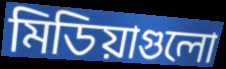
মিডিয়াগুলো